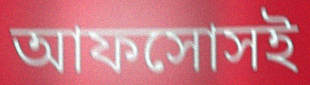
আফসোসই